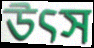
উৎস